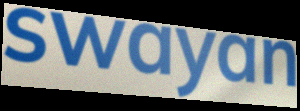
swayan